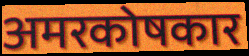
अमरकोषकार